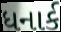
ધનાર્ક